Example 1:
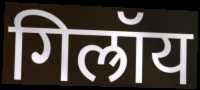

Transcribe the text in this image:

गिल्रॉय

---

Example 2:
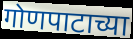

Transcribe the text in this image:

गोणपाटाच्या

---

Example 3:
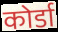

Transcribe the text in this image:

कोर्डा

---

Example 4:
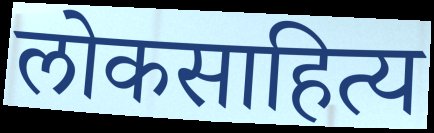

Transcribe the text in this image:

लोकसाहित्य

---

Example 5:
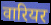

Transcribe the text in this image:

वारियर